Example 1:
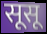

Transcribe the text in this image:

सूसू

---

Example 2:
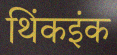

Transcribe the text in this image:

थिंकइंक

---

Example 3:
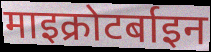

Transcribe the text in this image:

माइक्रोटर्बाइन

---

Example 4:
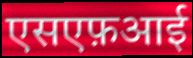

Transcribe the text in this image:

एसएफ़आई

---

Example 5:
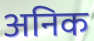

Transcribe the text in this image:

अनिक